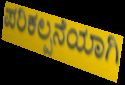
ಪರಿಕಲ್ಪನೆಯಾಗಿ